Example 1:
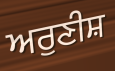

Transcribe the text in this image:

ਅਰੁਣੀਸ਼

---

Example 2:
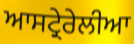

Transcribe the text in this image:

ਆਸਟ੍ਰੇਰੇਲੀਆ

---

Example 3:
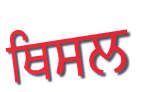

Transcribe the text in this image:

ਥਿਸਲ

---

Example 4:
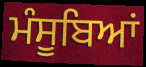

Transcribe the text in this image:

ਮੰਸੂਬਿਆਂ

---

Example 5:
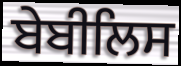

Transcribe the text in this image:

ਬੇਬੀਲਿਸ